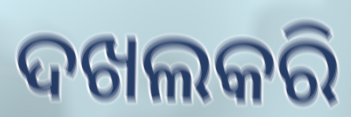
ଦଖଲକରି